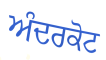
ਅੰਦਰਕੋਟ